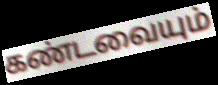
கண்டவையும்